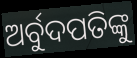
ଅର୍ବୁଦପତିଙ୍କୁ